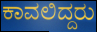
ಕಾವಲಿದ್ದರು